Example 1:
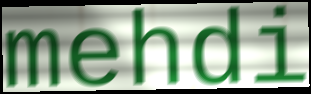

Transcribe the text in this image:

mehdi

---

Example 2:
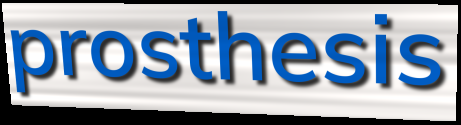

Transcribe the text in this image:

prosthesis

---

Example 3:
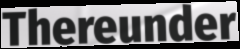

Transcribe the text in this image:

Thereunder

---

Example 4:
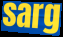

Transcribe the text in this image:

sarg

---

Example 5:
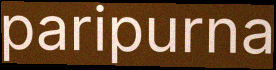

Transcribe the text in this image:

paripurna